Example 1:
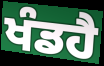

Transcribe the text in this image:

ਖੰਡਹੈ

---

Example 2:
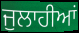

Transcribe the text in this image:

ਜੁਲਾਹੀਆਂ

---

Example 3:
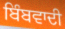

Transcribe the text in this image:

ਬਿੰਬਵਾਦੀ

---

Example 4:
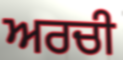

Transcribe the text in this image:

ਅਰਚੀ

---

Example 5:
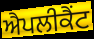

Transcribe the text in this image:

ਐਪਲੀਕੈਂਟ